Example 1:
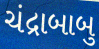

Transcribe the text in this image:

ચંદ્રાબાબુ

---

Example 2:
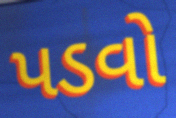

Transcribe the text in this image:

પડવો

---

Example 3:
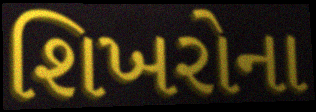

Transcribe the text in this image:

શિખરોના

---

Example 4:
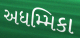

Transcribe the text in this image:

અધમ્મિકા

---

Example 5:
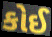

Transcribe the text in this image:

કોઈ